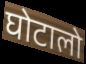
घोटालो